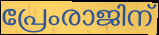
പ്രേംരാജിന്